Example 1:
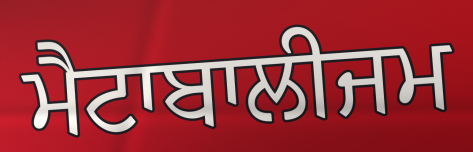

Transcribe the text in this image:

ਮੈਟਾਬਾਲੀਜਮ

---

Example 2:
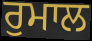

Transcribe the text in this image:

ਰੁਮਾਲ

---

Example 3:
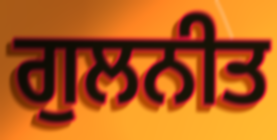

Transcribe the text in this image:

ਗੁਲਨੀਤ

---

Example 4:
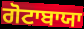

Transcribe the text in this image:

ਗੋਟਾਬਾਯਾ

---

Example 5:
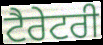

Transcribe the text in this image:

ਟੈਰੇਟਰੀ